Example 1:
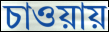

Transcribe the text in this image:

চাওয়ায়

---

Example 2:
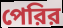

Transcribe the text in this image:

পেরির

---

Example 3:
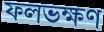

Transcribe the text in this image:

ফলভক্ষণ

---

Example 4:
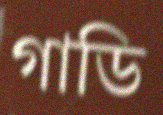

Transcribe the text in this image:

গাডি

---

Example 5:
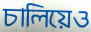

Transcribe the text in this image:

চালিয়েও